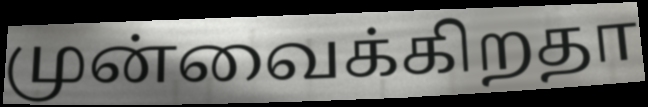
முன்வைக்கிறதா